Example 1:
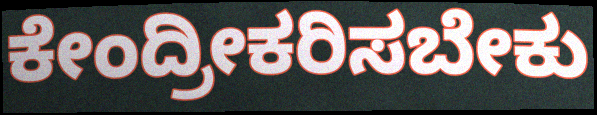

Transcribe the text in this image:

ಕೇಂದ್ರೀಕರಿಸಬೇಕು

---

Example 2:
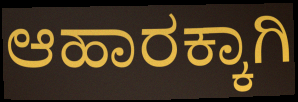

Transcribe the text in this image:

ಆಹಾರಕ್ಕಾಗಿ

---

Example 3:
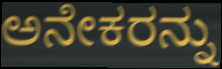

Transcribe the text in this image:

ಅನೇಕರನ್ನು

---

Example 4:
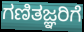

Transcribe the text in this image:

ಗಣಿತಜ್ಞರಿಗೆ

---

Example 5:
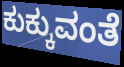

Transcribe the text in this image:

ಕುಕ್ಕುವಂತೆ